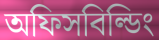
অফিসবিল্ডিং